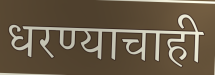
धरण्याचाही